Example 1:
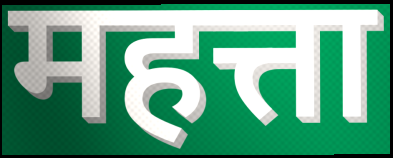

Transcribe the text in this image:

महत्ता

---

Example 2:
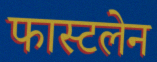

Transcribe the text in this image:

फास्टलेन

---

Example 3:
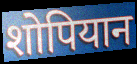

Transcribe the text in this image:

शोपियान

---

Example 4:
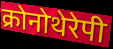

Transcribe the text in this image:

क्रोनोथेरेपी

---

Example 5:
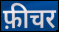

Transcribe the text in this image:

फ़ीचर